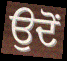
ਉਦੋੰ